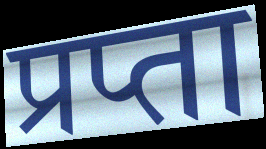
प्रप्ता